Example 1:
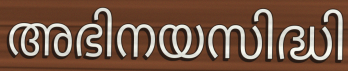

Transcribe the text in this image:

അഭിനയസിദ്ധി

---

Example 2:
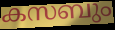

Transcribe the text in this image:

കസബും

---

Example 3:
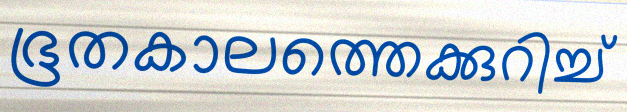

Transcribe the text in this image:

ഭൂതകാലത്തെക്കുറിച്ച്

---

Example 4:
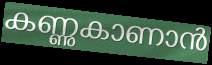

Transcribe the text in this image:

കണ്ണുകാണാൻ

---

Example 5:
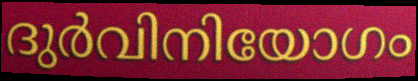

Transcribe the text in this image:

ദുർവിനിയോഗം